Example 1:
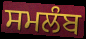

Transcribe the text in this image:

ਸਮਲੰਬ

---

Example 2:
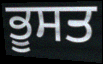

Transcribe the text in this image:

ਭੂਸਤ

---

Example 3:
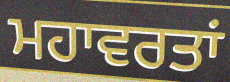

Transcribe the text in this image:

ਮਹਾਵਰਤਾਂ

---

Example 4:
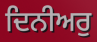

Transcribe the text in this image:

ਦਿਨੀਅਰੁ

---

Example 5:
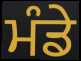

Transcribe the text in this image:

ਮੰਡੇ